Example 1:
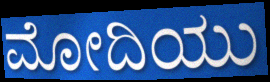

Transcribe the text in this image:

ಮೋದಿಯು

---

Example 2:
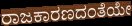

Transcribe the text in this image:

ರಾಜಕಾರಣದಂತೆಯೇ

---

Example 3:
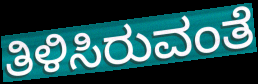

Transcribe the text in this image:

ತಿಳಿಸಿರುವಂತೆ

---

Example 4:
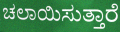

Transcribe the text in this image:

ಚಲಾಯಿಸುತ್ತಾರೆ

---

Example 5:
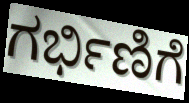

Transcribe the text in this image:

ಗರ್ಭಿಣಿಗೆ